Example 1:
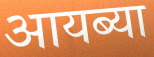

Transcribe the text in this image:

आयब्या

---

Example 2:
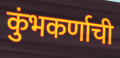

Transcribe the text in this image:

कुंभकर्णाची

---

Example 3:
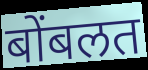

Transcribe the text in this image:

बोंबलत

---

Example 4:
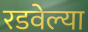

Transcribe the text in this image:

रडवेल्या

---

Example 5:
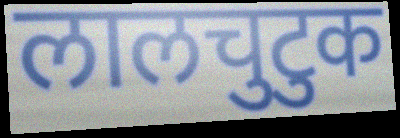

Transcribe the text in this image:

लालचुटुक